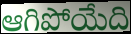
ఆగిపోయేది